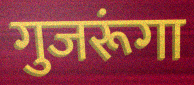
गुजरूंगा